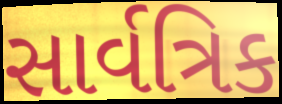
સાર્વત્રિક